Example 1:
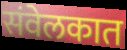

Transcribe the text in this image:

संवेलकात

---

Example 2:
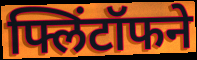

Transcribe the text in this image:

फ्लिंटॉफने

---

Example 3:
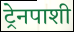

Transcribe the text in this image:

ट्रेनपाशी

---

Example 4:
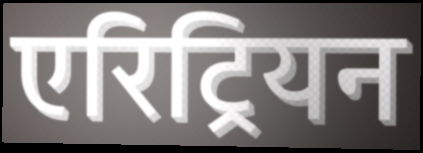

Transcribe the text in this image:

एरिट्रियन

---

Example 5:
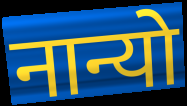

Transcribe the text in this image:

नान्यो